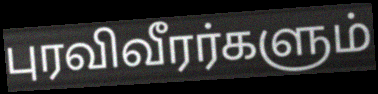
புரவிவீரர்களும்